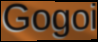
Gogoi